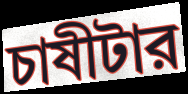
চাষীটার